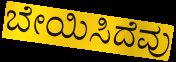
ಬೇಯಿಸಿದೆವು